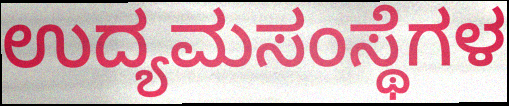
ಉದ್ಯಮಸಂಸ್ಥೆಗಳ